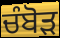
ਚੰਬੋੜ